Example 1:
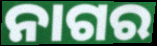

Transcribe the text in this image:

ନାଗର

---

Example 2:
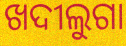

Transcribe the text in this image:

ଖଦୀଲୁଗା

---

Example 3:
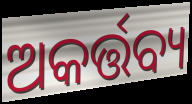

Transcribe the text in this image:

ଅକର୍ତ୍ତବ୍ୟ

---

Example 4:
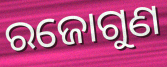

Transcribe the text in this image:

ରଜୋଗୁଣ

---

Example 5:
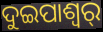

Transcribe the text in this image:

ଦୁଇପାଶ୍ୱର୍